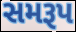
સમરૂપ